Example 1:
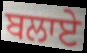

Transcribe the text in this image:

ਬਲਾਏ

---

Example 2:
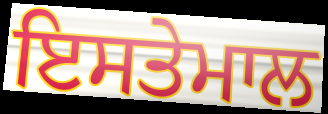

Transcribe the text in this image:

ਇਸਤੇਮਾਲ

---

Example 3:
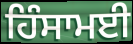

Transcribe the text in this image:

ਹਿੰਸਾਮਈ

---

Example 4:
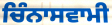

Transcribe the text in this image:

ਚਿੰਨਾਸਵਾਮੀ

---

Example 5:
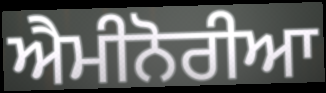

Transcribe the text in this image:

ਐਮੀਨੋਰੀਆ